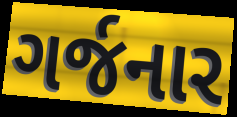
ગર્જનાર